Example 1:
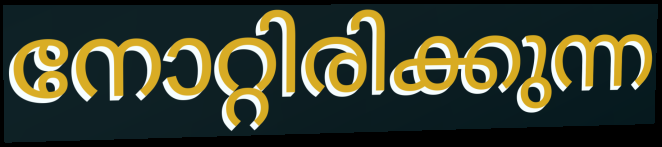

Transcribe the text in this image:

നോറ്റിരിക്കുന്ന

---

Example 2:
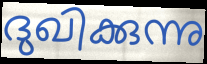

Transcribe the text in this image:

ദുഖിക്കുന്നു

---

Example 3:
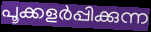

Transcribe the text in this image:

പൂക്കളർപ്പിക്കുന്ന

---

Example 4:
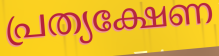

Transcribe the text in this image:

പ്രത്യക്ഷേണ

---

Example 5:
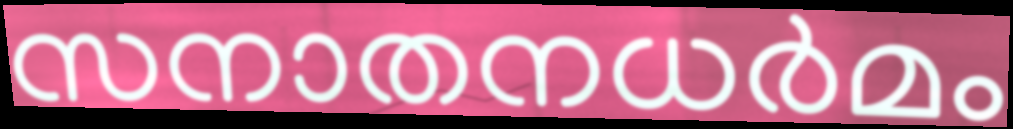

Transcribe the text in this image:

സനാതനധർമം